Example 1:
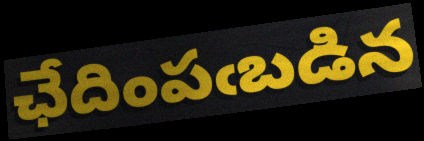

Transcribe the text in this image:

ఛేదింపఁబడిన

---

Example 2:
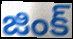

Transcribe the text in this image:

జింక్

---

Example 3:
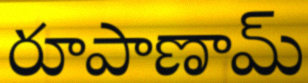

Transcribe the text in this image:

రూపాణామ్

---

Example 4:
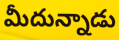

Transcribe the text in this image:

మీదున్నాడు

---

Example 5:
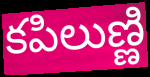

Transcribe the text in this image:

కపిలుణ్ణి